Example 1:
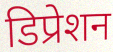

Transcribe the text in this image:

डिप्रेशन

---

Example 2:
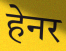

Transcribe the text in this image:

हेनर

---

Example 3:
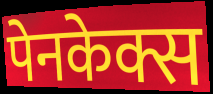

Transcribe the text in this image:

पेनकेक्स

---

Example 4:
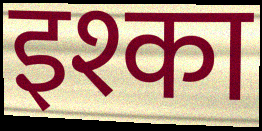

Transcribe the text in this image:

इश्का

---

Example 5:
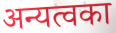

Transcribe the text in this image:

अन्यत्वका